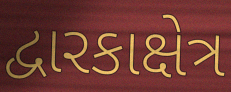
દ્વારકાક્ષેત્ર